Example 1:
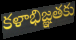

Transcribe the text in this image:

కళాభిజ్ఞతకు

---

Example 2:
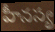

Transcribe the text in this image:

హీనస్య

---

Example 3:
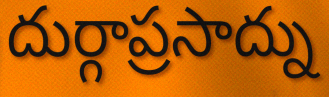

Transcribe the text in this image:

దుర్గాప్రసాద్ను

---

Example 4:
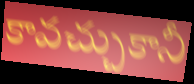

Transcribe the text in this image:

కావచ్చుకానీ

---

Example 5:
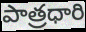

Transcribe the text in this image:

పాత్రధారి